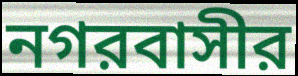
নগরবাসীর